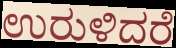
ಉರುಳಿದರೆ